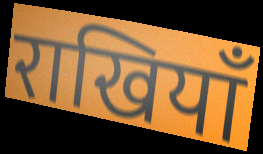
राखियाँ